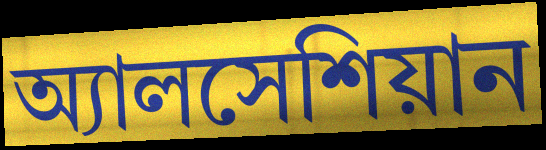
অ্যালসেশিয়ান